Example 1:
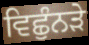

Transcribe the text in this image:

ਵਿਛੁੰਨੜੇ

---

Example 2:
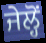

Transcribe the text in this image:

ਜੇਲ੍ਹੋਂ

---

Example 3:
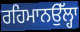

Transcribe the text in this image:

ਰਹਿਮਾਨਉੱਲ੍ਹਾ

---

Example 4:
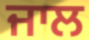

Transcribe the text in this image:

ਜਾਲ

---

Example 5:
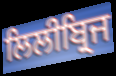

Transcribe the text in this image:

ਲਿਲੀਬ੍ਰਿਜ